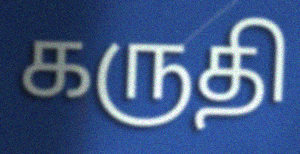
கருதி